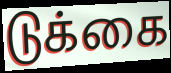
டுக்கை